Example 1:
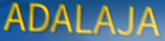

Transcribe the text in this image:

ADALAJA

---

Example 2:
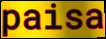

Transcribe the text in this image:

paisa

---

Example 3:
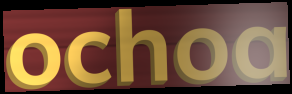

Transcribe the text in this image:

ochoa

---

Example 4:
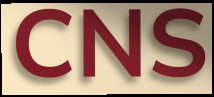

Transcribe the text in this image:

CNS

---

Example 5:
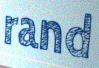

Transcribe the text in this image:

rand